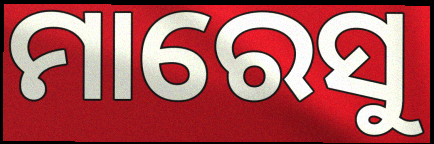
ମାରେସୁ